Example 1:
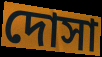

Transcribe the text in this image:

দোসা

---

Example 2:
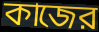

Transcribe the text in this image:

কাজের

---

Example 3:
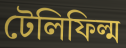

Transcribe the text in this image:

টেলিফিল্ম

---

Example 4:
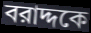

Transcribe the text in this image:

বরাদ্দকে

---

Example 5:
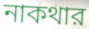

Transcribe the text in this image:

নাকথার